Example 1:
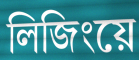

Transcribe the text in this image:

লিজিংয়ে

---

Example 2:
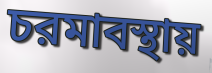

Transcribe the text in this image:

চরমাবস্থায়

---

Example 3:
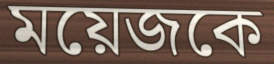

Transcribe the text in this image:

ময়েজকে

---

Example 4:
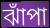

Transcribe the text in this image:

ঝাঁপা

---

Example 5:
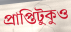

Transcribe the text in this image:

প্রাপ্তিটুকুও